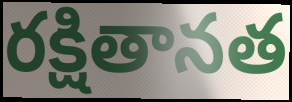
రక్షితానత